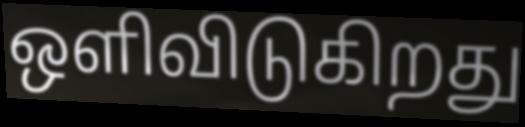
ஒளிவிடுகிறது